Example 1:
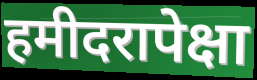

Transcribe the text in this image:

हमीदरापेक्षा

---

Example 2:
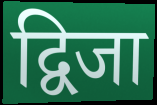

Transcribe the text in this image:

द्विजा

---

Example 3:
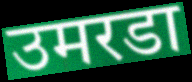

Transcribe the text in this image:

उमरडा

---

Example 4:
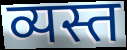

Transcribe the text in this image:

व्यस्त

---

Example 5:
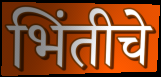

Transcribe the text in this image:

भिंतीचे